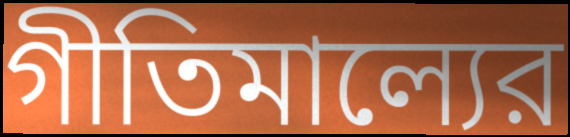
গীতিমাল্যের